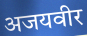
अजयवीर